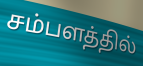
சம்பளத்தில்